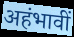
अहंभावीं